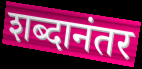
शब्दानंतर